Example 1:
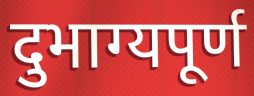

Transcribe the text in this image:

दुभाग्यपूर्ण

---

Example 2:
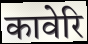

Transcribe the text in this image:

कावेरि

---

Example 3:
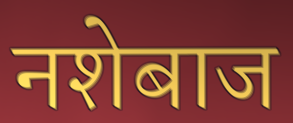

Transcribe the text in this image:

नशेबाज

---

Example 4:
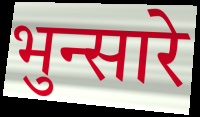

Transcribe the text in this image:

भुन्सारे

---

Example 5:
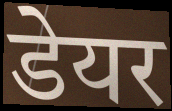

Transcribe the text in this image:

डेयर